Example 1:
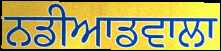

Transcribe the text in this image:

ਨਡੀਆਡਵਾਲਾ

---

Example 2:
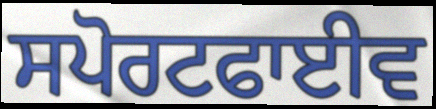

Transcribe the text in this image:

ਸਪੋਰਟਫਾਈਵ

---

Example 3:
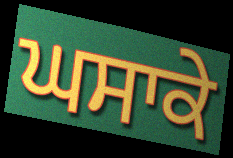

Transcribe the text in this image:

ਘਸਾਕੇ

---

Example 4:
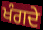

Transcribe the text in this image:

ਖੰਗਦੇ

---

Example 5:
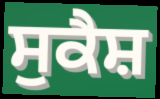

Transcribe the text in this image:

ਸੁਕੈਸ਼